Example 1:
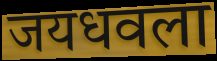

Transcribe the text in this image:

जयधवला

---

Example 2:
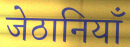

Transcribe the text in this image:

जेठानियाँ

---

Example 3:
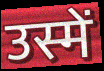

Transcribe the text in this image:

उस्में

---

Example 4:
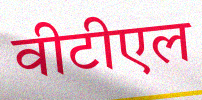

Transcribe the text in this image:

वीटीएल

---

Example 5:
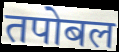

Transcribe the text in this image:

तपोबल